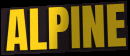
ALPINE